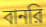
বানরি